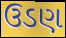
ઉડણ